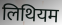
लिथियम